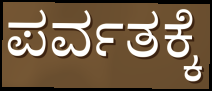
ಪರ್ವತಕ್ಕೆ